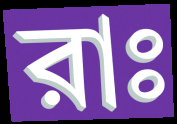
রাঃ